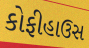
કોફીહાઉસ